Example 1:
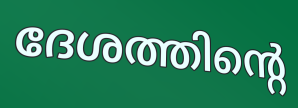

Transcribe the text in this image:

ദേശത്തിന്റെ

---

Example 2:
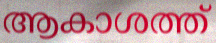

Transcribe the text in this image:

ആകാശത്ത്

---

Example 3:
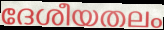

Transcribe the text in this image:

ദേശീയതലം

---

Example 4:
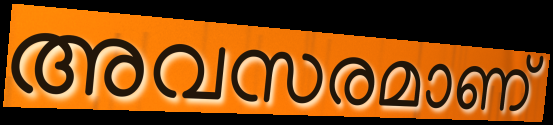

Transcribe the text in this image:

അവസരമാണ്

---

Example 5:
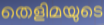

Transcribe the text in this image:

തെളിമയുടെ